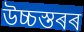
উচ্চস্তৰৰ